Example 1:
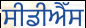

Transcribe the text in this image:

ਸੀਡੀਐੱਸ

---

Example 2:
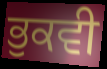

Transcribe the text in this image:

ਭੁਕਵੀ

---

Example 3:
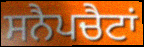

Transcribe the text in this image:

ਸਨੈਪਚੈਟਾਂ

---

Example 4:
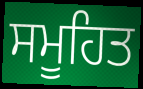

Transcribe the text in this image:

ਸਮੂਹਿਤ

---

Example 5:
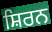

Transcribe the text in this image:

ਸ਼ਿਰਨ